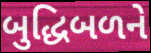
બુદ્ધિબળને